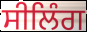
ਸੀਲਿੰਗ